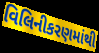
વિલિનીકરણમાંથી